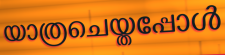
യാത്രചെയ്തപ്പോൾ